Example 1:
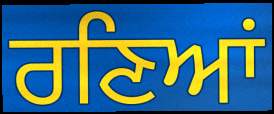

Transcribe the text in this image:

ਰਣਿਆਂ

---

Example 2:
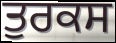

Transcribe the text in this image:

ਤੁਰਕਸ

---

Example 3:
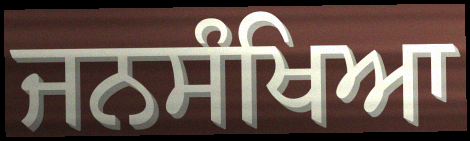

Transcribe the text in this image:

ਜਨਸੰਖਿਆ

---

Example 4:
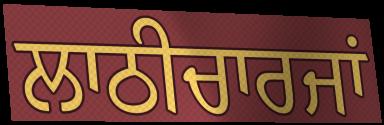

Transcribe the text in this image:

ਲਾਠੀਚਾਰਜਾਂ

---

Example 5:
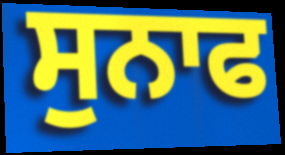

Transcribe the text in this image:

ਸੁਨਾਫ